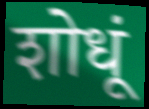
शोधूं